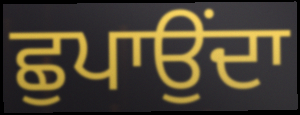
ਛੁਪਾਉਂਦਾ